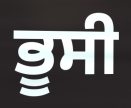
ਭੂਸੀ